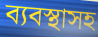
ব্যবস্থাসহ